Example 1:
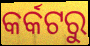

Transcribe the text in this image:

କର୍କଟରୁ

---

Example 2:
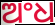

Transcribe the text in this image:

ଅଂଧ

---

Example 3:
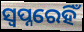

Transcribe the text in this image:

ସ୍ୱପ୍ନରେହିଁ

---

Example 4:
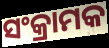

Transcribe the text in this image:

ସଂକ୍ରାମକ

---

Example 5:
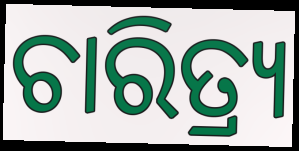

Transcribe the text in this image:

ଚାରିତ୍ର୍ୟ